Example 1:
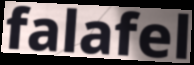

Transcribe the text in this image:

falafel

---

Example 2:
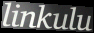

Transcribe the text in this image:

linkulu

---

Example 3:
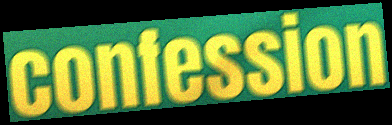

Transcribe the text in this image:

confession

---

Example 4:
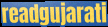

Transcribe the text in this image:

readgujarati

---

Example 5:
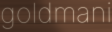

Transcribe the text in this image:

goldmani